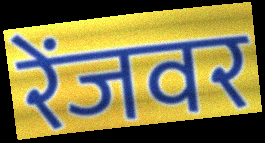
रेंजवर